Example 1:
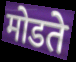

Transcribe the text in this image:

मोडते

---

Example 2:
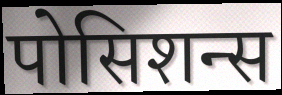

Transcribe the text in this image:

पोसिशन्स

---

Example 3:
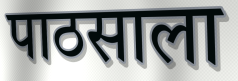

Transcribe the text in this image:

पाठसाला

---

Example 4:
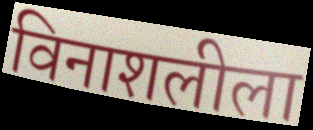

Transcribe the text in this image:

विनाशलीला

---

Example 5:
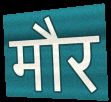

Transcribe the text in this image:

मौर